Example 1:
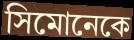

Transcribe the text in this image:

সিমোনেকে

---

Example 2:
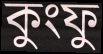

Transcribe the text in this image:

কুংফু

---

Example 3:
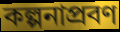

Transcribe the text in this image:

কল্পনাপ্রবণ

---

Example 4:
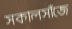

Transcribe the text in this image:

সকালসাঁজে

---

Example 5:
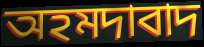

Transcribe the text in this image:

অহমদাবাদ